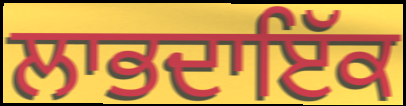
ਲਾਭਦਾਇੱਕ